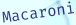
Macaroni